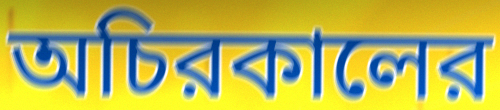
অচিরকালের